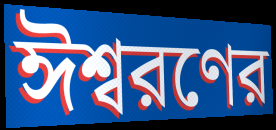
ঈশ্বরণের